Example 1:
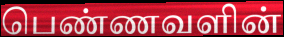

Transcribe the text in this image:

பெண்ணவளின்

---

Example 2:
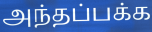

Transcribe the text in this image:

அந்தப்பக்க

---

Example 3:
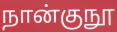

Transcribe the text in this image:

நான்குநூ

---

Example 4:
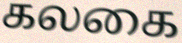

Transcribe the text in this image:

கலகை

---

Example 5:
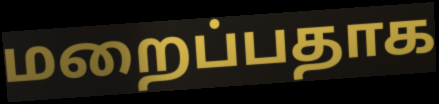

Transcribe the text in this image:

மறைப்பதாக